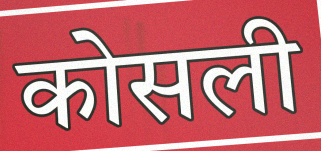
कोसली